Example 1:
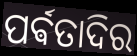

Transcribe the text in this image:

ପର୍ଵତାଦିର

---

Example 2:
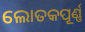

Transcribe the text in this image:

ଲୋତକପୂର୍ଣ୍ଣ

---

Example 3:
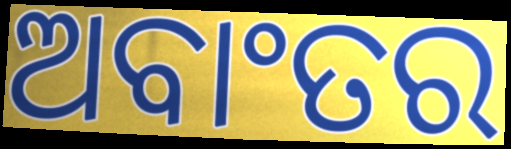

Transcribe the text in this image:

ଅବାଂତର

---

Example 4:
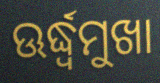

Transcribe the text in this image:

ଊର୍ଦ୍ଧ୍ବମୁଖା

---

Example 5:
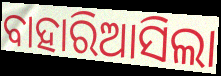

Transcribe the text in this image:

ବାହାରିଆସିଲା